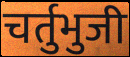
चर्तुभुजी